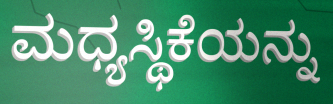
ಮಧ್ಯಸ್ಥಿಕೆಯನ್ನು